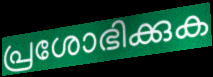
പ്രശോഭിക്കുക